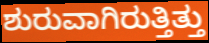
ಶುರುವಾಗಿರುತ್ತಿತ್ತು